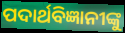
ପଦାର୍ଥବିଜ୍ଞାନୀଙ୍କୁ